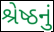
શ્રેષ્ઠનું